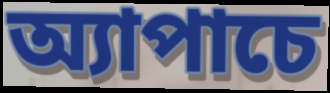
অ্যাপাচে